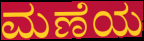
ಮಣೆಯ